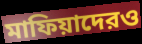
মাফিয়াদেরও